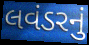
લવંડરનું